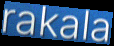
rakala